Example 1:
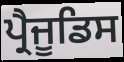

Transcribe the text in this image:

ਪ੍ਰੈਜੂਡਿਸ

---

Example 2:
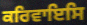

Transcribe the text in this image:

ਕਰਿਵਾਇਸਿ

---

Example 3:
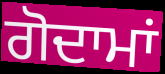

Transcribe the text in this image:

ਗੋਦਾਮਾਂ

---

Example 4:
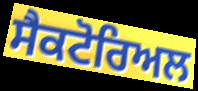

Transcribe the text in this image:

ਸੈਕਟੋਰਿਅਲ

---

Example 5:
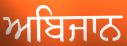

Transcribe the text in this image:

ਅਬਿਜਾਨ